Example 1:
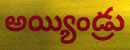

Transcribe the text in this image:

అయ్యిండ్రు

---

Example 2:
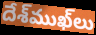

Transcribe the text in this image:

దేశ్‌ముఖ్‌లు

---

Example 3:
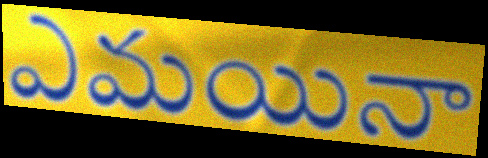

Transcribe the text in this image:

ఎమయినా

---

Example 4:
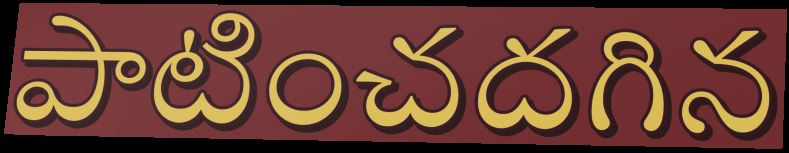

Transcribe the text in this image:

పాటించదగిన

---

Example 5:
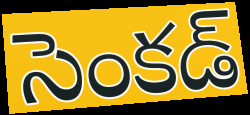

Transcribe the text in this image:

సెంకడ్